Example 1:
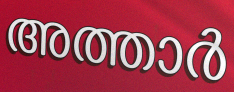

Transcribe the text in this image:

അത്താർ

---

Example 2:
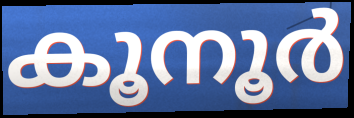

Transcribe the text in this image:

കൂനൂർ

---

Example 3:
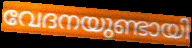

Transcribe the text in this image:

വേദനയുണ്ടായി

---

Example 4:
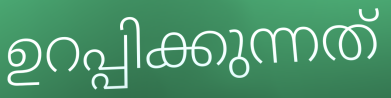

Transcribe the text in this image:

ഉറപ്പിക്കുന്നത്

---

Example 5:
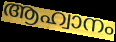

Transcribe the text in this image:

ആഹ്വാനം